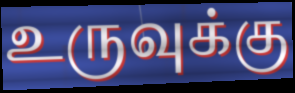
உருவுக்கு